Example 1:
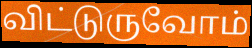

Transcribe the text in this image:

விட்டுருவோம்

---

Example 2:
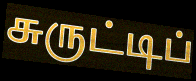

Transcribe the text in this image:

சுருட்டிப்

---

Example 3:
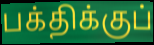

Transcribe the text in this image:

பக்திக்குப்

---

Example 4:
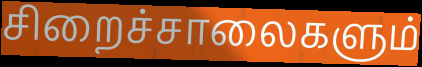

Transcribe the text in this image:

சிறைச்சாலைகளும்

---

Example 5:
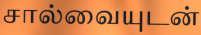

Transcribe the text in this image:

சால்வையுடன்